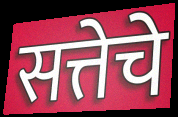
सत्तेचे